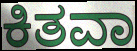
ಕಿತವಾ